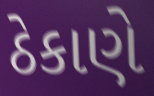
ઠેકાણે